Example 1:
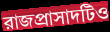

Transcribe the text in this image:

রাজপ্রাসাদটিও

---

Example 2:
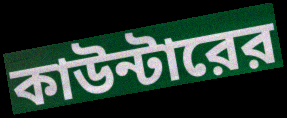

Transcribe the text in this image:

কাউন্টারের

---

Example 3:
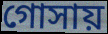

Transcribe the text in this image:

গোসায়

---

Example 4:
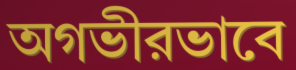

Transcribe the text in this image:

অগভীরভাবে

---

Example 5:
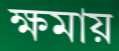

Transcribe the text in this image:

ক্ষমায়